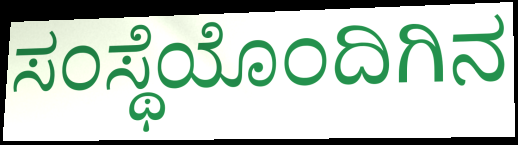
ಸಂಸ್ಥೆಯೊಂದಿಗಿನ